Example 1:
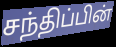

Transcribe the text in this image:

சந்திப்பின்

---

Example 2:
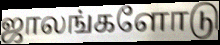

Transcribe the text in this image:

ஜாலங்களோடு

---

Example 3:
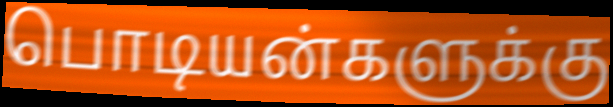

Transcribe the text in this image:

பொடியன்களுக்கு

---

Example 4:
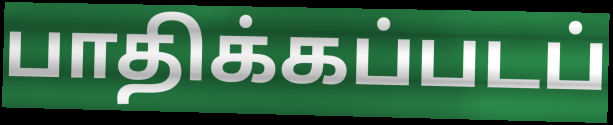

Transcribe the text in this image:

பாதிக்கப்படப்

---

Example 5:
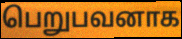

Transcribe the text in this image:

பெறுபவனாக